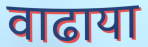
वाढाया